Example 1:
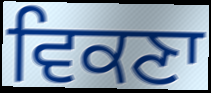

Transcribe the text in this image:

ਵਿਕਣਾ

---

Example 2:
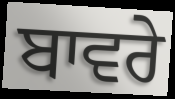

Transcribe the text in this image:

ਬਾਵਰੇ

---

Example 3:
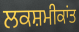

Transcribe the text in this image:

ਲਕਸ਼ਮੀਕਾਂਤ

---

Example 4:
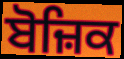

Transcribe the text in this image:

ਬੋਜ਼ਿਕ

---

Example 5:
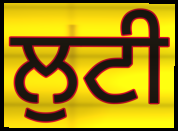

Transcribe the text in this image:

ਲੁਟੀ